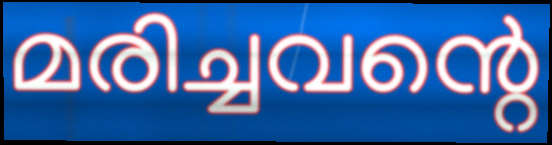
മരിച്ചവന്റെ